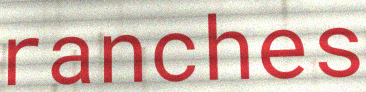
ranches